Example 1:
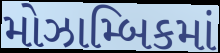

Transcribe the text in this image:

મોઝામ્બિકમાં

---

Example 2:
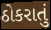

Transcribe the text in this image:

ઠોકરાતું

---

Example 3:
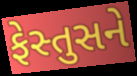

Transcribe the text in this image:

ફેસ્તુસને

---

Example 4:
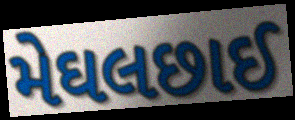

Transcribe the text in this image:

મેઘલછાઈ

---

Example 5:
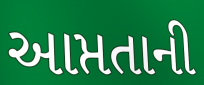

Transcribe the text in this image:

આપ્તતાની